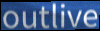
outlive